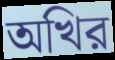
অখির